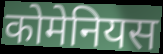
कोमेनियस